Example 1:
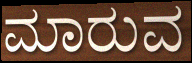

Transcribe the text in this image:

ಮಾರುವ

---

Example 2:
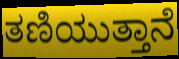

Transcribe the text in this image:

ತಣಿಯುತ್ತಾನೆ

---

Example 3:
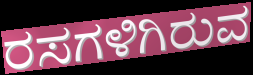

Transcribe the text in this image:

ರಸಗಳಿಗಿರುವ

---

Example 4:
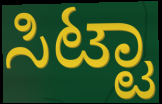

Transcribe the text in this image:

ಸಿಟ್ಟಾ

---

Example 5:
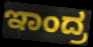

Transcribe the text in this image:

ಇಾಂದ್ರ